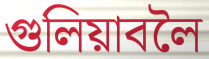
গুলিয়াবলৈ